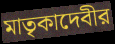
মাতৃকাদেবীর